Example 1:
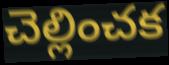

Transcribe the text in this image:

చెల్లించక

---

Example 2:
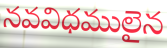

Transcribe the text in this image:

నవవిధములైన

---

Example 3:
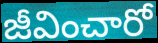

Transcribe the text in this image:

జీవించారో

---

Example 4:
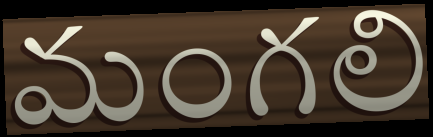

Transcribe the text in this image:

మంగలి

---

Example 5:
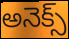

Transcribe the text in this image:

అనెక్స్